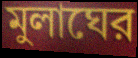
মুলাঘের